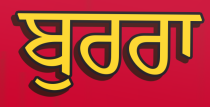
ਬੁਰਰਾ